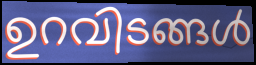
ഉറവിടങ്ങൾ